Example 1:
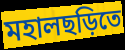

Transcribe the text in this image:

মহালছড়িতে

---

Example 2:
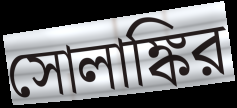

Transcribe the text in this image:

সোলাঙ্কির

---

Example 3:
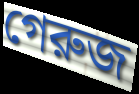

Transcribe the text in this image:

গেরুজ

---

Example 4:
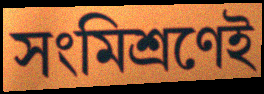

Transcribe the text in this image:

সংমিশ্রণেই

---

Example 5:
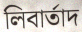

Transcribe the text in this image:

লিবার্তাদ